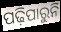
ପଢ଼ିପାରୁନି